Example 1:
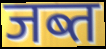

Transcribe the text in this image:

जब्त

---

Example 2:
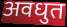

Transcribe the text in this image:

अवधुत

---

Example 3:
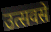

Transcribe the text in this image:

उत्सवसे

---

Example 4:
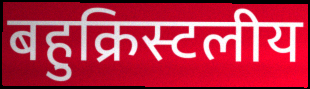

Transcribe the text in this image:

बहुक्रिस्टलीय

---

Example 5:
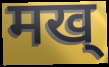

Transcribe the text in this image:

मख्